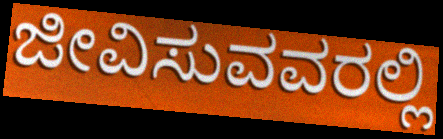
ಜೀವಿಸುವವರಲ್ಲಿ